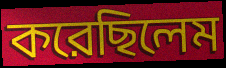
করেছিলেম